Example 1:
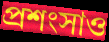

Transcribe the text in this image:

প্রশংসাও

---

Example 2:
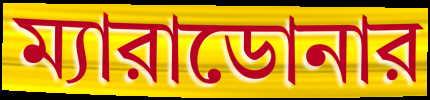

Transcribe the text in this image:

ম্যারাডোনার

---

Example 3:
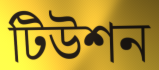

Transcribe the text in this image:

টিউশন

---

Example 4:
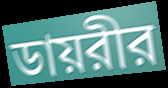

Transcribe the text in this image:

ডায়রীর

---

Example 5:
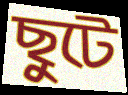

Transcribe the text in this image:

ছুটে